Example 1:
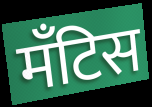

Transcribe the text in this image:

मँटिस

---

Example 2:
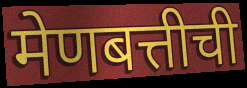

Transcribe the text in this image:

मेणबत्तीची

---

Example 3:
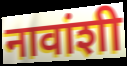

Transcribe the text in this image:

नावांशी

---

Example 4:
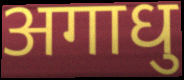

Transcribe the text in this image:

अगाधु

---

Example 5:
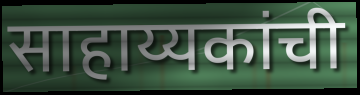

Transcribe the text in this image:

साहाय्यकांची